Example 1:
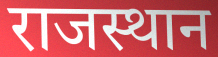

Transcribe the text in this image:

राजस्‍थान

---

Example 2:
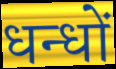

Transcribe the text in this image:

धन्धों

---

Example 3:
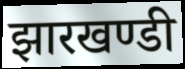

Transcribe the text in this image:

झारखण्डी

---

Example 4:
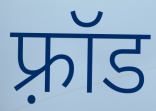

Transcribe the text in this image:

फ़्रॉड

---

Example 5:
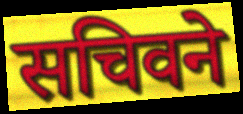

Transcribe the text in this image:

सचिवने